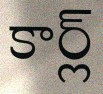
కార్ల్